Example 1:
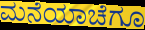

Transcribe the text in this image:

ಮನೆಯಾಚೆಗೂ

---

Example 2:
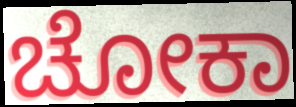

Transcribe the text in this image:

ಚೋಕಾ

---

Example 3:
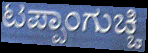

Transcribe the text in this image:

ಟಪ್ಪಾಂಗುಚ್ಚಿ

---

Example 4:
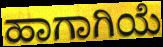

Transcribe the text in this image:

ಹಾಗಾಗಿಯೆ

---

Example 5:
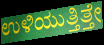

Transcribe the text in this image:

ಉಳಿಯುತ್ತಿತ್ತೇ